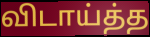
விடாய்த்த